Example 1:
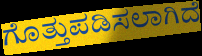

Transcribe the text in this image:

ಗೊತ್ತುಪಡಿಸಲಾಗಿದೆ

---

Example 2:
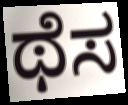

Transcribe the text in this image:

ಥೆಸ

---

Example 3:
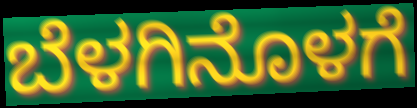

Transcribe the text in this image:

ಬೆಳಗಿನೊಳಗೆ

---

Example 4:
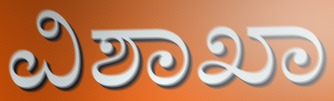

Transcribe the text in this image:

ವಿಶಾಖಾ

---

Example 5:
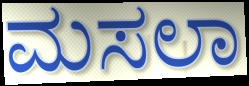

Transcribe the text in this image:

ಮಸಲಾ